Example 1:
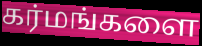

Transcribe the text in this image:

கர்மங்களை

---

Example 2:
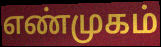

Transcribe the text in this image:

எண்முகம்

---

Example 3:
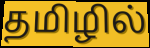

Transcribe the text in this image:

தமிழில்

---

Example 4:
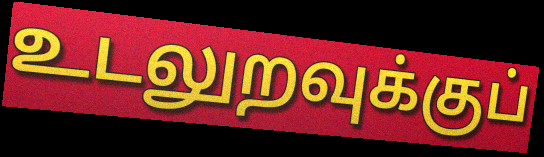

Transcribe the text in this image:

உடலுறவுக்குப்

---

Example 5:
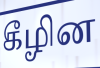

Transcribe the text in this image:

கீழின